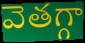
వెతగ్గా